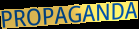
PROPAGANDA